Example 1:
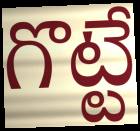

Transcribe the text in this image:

గొట్టే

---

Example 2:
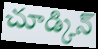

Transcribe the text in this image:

చూడ్కిన్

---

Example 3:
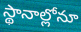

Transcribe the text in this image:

స్థానాల్లోనూ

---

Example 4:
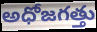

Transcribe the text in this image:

అధోజగత్తు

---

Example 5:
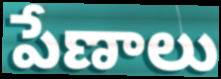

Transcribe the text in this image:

పేణాలు